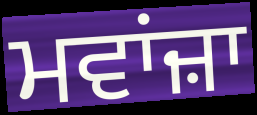
ਮਵਾਂਜ਼ਾ